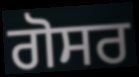
ਗੋਸਰ